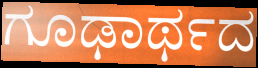
ಗೂಢಾರ್ಥದ